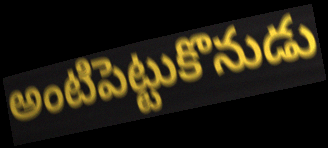
అంటిపెట్టుకొనుడు